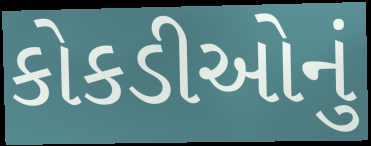
કોકડીઓનું